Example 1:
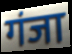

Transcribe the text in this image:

गंजा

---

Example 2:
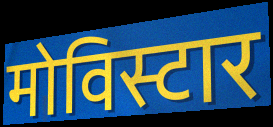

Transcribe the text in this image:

मोविस्टार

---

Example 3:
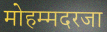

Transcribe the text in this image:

मोहम्मदरजा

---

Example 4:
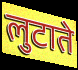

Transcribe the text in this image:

लुटाते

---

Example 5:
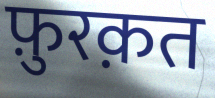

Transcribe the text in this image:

फ़ुरक़त